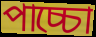
পাচ্চো